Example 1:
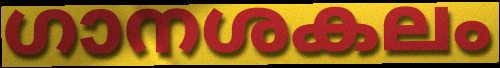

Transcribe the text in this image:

ഗാനശകലം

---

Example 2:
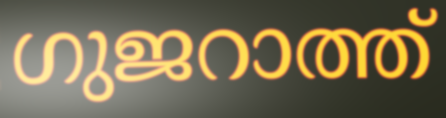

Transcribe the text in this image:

ഗുജറാത്ത്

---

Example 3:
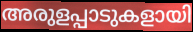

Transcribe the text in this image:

അരുളപ്പാടുകളായി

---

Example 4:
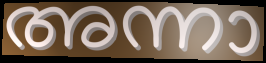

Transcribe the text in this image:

അന്നാ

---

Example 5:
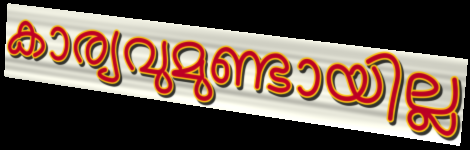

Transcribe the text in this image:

കാര്യവുമുണ്ടായില്ല